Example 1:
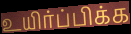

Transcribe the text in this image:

உயிர்ப்பிக்க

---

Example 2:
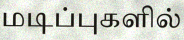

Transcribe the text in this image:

மடிப்புகளில்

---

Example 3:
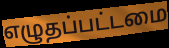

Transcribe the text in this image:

எழுதப்பட்டமை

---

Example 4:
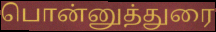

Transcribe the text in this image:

பொன்னுத்துரை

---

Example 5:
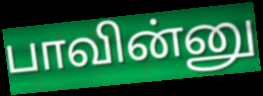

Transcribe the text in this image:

பாவின்னு